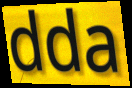
dda